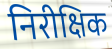
निरीक्षिक